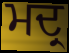
ਮਦ੍ਰ